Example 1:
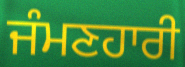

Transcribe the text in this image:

ਜੰਮਣਹਾਰੀ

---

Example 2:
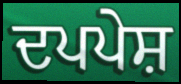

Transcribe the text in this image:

ਦਪਪੇਸ਼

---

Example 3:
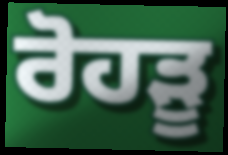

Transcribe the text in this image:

ਰੋਹੜੂ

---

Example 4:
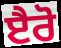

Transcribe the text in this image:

ੲੈਰੋ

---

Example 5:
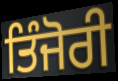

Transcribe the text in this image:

ਤਿੰਜੋਰੀ